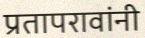
प्रतापरावांनी